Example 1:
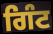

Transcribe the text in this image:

ਗਿੰਟ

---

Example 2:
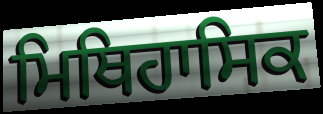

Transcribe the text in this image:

ਮਿਥਿਹਾਸਿਕ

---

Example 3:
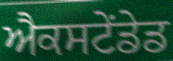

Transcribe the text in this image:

ਐਕਸਟੇਂਡੇਡ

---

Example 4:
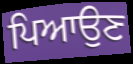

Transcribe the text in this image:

ਪਿਆਉਣ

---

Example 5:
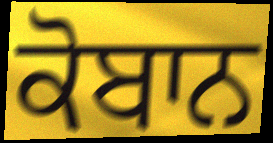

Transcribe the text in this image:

ਕੋਬਾਨ